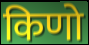
किणो